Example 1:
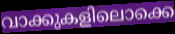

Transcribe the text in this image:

വാക്കുകളിലൊക്കെ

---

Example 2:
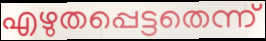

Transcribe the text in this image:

എഴുതപ്പെട്ടതെന്ന്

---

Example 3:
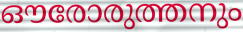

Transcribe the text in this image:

ഔരോരുത്തനും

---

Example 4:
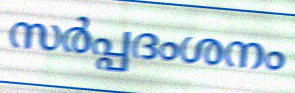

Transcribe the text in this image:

സർപ്പദംശനം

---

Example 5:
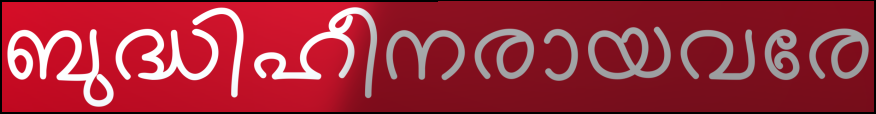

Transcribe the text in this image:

ബുദ്ധിഹീനരായവരേ